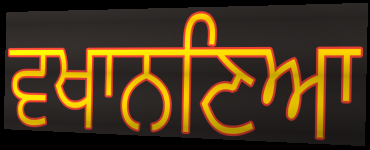
ਵਖਾਨਣਿਆ